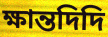
ক্ষান্তদিদি